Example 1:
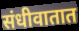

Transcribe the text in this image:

संधीवातात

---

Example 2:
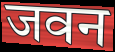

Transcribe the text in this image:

जवन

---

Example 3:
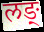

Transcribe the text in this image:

लङ्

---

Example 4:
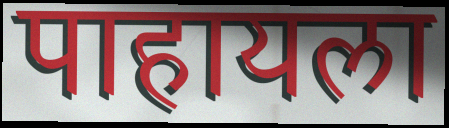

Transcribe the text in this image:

पाहायला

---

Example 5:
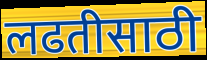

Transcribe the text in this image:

लढतीसाठी